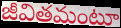
జీవితమంటూ